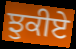
ਝੁਕੀਏ